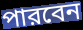
পারবেন